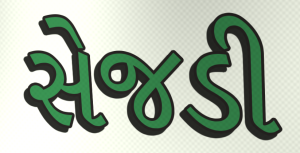
સેજડી